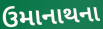
ઉમાનાથના